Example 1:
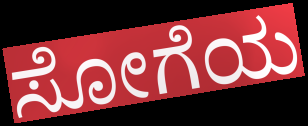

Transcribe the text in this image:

ಸೋಗೆಯ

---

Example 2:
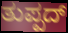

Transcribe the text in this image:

ತುಪ್ಪದ್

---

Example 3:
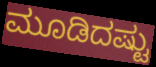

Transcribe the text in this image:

ಮೂಡಿದಷ್ಟು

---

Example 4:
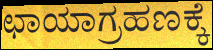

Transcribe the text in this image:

ಛಾಯಾಗ್ರಹಣಕ್ಕೆ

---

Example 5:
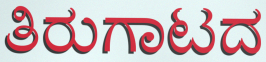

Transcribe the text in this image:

ತಿರುಗಾಟದ